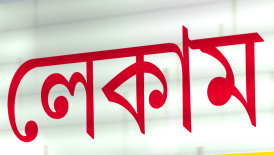
লেকাম